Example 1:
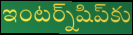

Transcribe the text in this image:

ఇంటర్న్‌షిప్‌కు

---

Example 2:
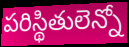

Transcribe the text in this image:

పరిస్థితులెన్నో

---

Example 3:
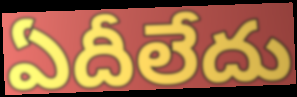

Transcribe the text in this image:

ఏదీలేదు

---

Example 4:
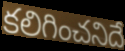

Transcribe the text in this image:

కలిగించనిదే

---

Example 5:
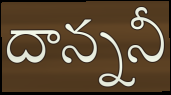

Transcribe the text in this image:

దాన్ననీ